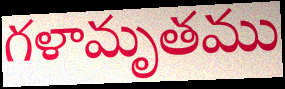
గళామృతము